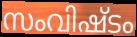
സംവിഷ്ടം